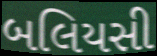
બલિયસી